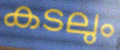
കടലും